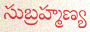
సుబ్రహ్మణ్య